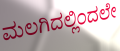
ಮಲಗಿದಲ್ಲಿಂದಲೇ